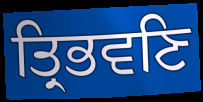
ਤ੍ਰਿਭਵਣਿ